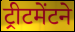
ट्रीटमेंटने